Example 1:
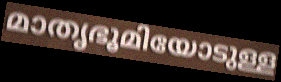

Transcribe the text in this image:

മാതൃഭൂമിയോടുള്ള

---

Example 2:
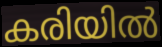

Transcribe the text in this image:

കരിയിൽ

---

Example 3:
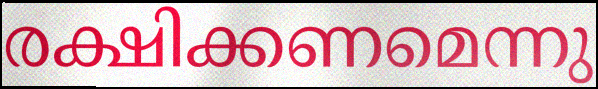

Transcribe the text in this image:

രക്ഷിക്കണമെന്നു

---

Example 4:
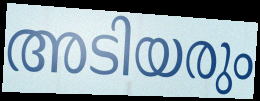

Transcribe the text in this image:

അടിയരും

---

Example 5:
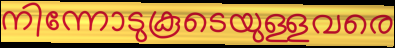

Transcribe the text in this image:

നിന്നോടുകൂടെയുള്ളവരെ